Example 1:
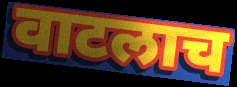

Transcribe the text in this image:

वाटलाच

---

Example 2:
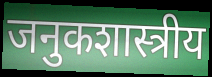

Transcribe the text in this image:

जनुकशास्त्रीय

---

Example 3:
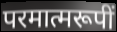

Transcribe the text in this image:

परमात्मरूपीं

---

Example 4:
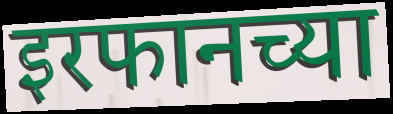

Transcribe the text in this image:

इरफानच्या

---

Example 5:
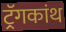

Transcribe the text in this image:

ट्रॅगकांथ